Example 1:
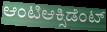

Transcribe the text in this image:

ಆಂಟಿಆಕ್ಸಿಡೆಂಟ್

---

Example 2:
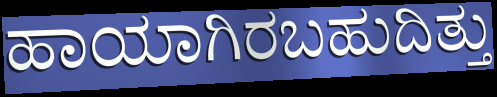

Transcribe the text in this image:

ಹಾಯಾಗಿರಬಹುದಿತ್ತು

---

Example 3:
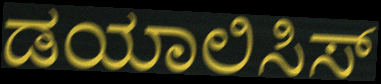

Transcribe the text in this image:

ಡಯಾಲಿಸಿಸ್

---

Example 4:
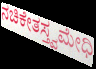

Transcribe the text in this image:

ನಚಿಕೇತಸ್ತ್ವಮೇಧಿ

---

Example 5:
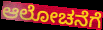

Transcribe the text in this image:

ಆಲೋಚನೆಗೆ